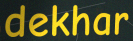
dekhar